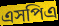
এসপিএ